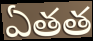
ఏతత